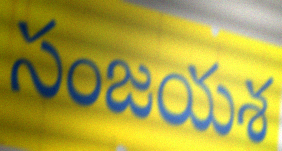
సంజయశ